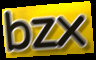
bzx